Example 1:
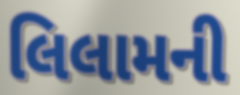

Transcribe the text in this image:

લિલામની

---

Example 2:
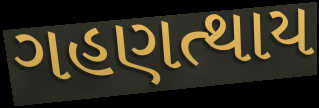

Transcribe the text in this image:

ગહણત્થાય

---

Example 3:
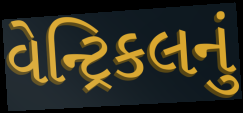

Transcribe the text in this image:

વેન્ટ્રિકલનું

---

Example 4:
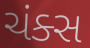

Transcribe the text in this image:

ચંક્સ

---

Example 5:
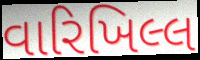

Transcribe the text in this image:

વારિખિલ્લ